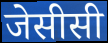
जेसीसी